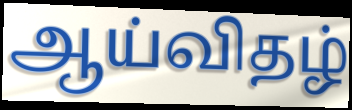
ஆய்விதழ்